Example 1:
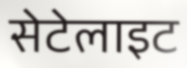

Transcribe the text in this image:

सेटेलाइट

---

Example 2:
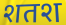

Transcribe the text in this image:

शतश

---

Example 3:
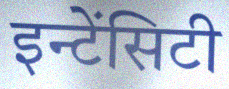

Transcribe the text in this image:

इन्टेंसिटी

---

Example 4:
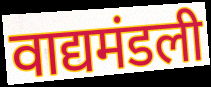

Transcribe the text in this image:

वाद्यमंडली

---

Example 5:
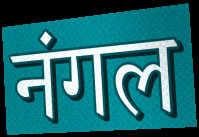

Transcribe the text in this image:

नंगल